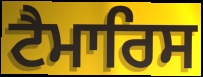
ਟੈਮਾਰਿਸ